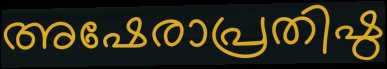
അഷേരാപ്രതിഷ്ഠ